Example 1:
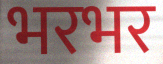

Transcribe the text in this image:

भरभर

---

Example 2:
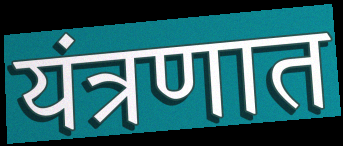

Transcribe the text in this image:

यंत्रणात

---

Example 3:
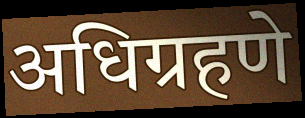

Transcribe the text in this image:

अधिग्रहणे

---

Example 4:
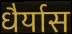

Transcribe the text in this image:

धैर्यास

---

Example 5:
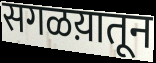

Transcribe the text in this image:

सगळय़ातून